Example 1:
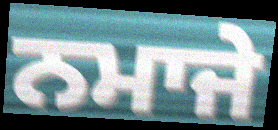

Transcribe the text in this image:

ਨਮਾਜੇ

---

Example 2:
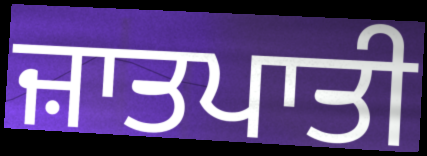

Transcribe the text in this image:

ਜ਼ਾਤਪਾਤੀ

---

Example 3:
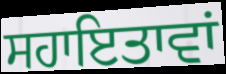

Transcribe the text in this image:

ਸਹਾਇਤਾਵਾਂ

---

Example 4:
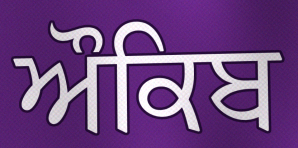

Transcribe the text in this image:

ਔਕਿਬ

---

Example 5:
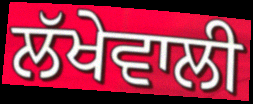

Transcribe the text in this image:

ਲੱਖੇਵਾਲੀ